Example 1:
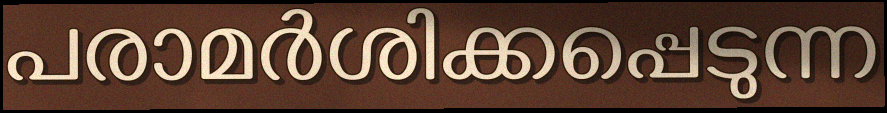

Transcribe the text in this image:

പരാമർശിക്കപ്പെടുന്ന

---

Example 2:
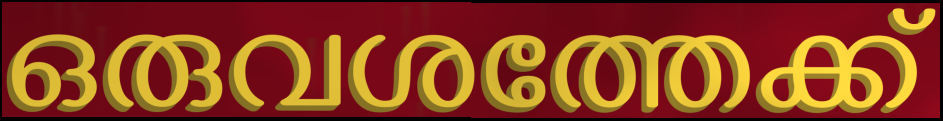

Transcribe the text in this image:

ഒരുവശത്തേക്ക്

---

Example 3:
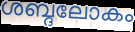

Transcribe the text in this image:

ശബ്ദലോകം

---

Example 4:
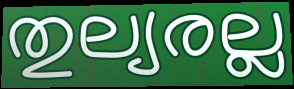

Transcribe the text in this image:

തുല്യരല്ല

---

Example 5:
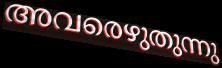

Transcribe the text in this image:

അവരെഴുതുന്നു